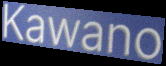
Kawano